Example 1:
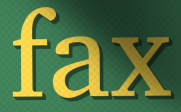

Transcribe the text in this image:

fax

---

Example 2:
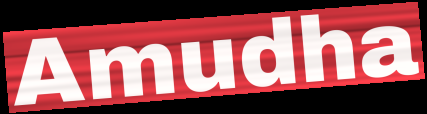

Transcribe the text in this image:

Amudha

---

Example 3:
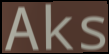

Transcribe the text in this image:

Aks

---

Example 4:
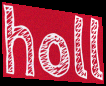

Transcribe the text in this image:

holl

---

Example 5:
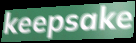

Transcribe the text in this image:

keepsake